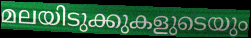
മലയിടുക്കുകളുടെയും